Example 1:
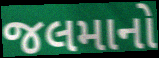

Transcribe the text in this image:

જલમાનો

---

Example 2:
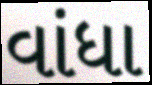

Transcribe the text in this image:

વાંધા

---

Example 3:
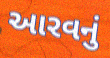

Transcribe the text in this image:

આરવનું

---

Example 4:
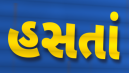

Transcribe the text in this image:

હસતાં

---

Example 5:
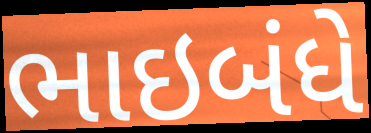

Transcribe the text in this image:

ભાઇબંધે